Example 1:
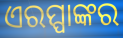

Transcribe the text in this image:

ଏରପ୍ପାଙ୍କର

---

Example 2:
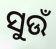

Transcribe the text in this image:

ସୁଉଁ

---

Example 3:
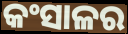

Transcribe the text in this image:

କଂସାଳର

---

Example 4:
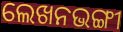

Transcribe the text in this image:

ଲେଖନଭଙ୍ଗୀ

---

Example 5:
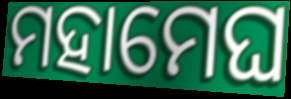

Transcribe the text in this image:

ମହାମେଘ